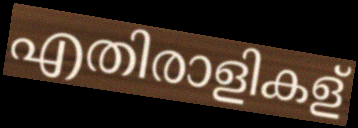
എതിരാളികള്